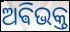
ଅଵିଭକ୍ତ